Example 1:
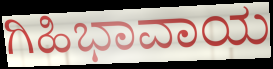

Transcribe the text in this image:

ಗಿಹಿಭಾವಾಯ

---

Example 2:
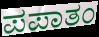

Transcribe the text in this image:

ಪಪಾತಂ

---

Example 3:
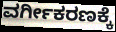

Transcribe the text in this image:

ವರ್ಗೀಕರಣಕ್ಕೆ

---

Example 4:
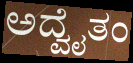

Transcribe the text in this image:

ಅದ್ವೈತಂ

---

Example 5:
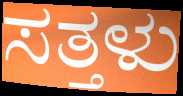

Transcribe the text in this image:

ಸತ್ತಳು